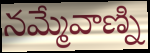
నమ్మేవాణ్ని